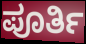
ಪೂರ್ತಿ